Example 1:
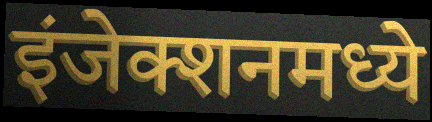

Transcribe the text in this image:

इंजेक्शनमध्ये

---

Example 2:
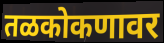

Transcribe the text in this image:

तळकोकणावर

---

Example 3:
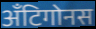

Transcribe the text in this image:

अँटिगोनस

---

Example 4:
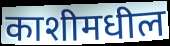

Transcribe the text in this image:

काशीमधील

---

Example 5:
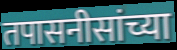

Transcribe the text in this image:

तपासनीसांच्या